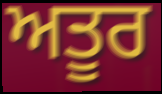
ਅਤੂਰ